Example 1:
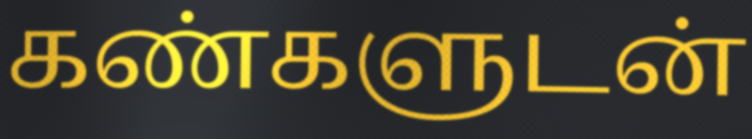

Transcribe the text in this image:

கண்களுடன்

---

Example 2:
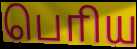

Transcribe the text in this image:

பெரிய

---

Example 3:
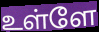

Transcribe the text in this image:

உள்ளே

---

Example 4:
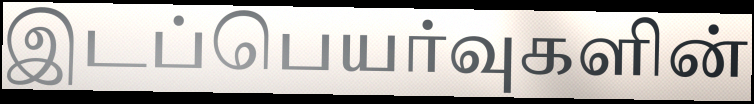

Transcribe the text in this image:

இடப்பெயர்வுகளின்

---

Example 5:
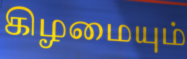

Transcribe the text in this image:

கிழமையும்